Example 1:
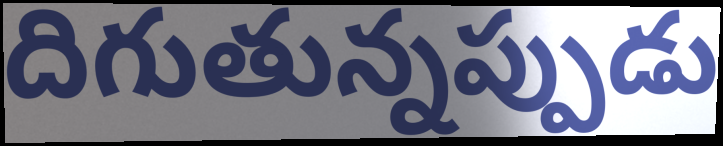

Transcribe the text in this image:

దిగుతున్నప్పుడు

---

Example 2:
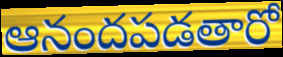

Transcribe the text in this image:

ఆనందపడతారో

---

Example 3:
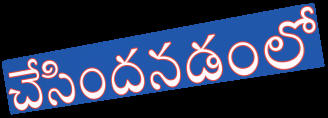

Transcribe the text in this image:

చేసిందనడంలో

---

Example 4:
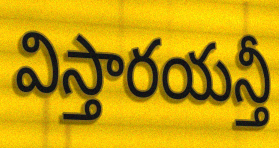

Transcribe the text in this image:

విస్తారయన్తీ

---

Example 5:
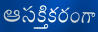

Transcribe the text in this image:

ఆసక్తికరంగా